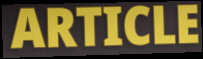
ARTICLE